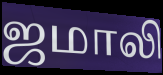
ஜமாலி